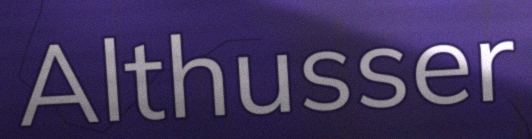
Althusser